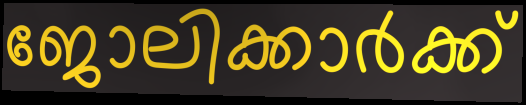
ജോലിക്കാർക്ക്